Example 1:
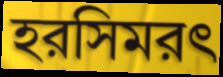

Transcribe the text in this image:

হরসিমরৎ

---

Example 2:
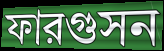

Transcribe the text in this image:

ফারগুসন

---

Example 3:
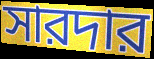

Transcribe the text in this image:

সারদার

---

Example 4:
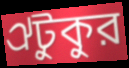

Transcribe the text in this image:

ঐটুকুর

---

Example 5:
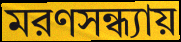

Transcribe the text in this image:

মরণসন্ধ্যায়